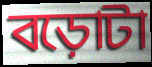
বড়োটা